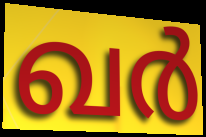
ഖർ